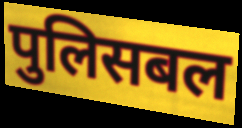
पुलिसबल